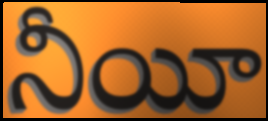
నీయీ